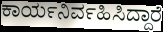
ಕಾರ್ಯನಿರ್ವಹಿಸಿದ್ದಾರೆ